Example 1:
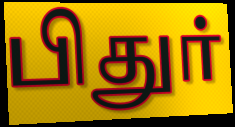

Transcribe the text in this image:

பிதுர்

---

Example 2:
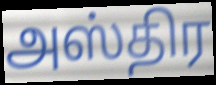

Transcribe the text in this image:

அஸ்திர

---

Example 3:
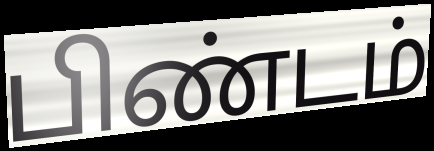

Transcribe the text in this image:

பிண்டம்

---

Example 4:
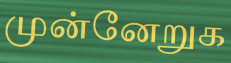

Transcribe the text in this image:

முன்னேறுக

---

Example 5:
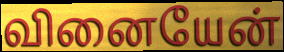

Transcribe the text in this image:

வினையேன்